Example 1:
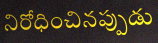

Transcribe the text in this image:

నిరోధించినప్పుడు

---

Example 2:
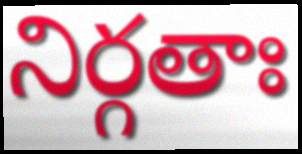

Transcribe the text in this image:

నిర్గతాః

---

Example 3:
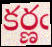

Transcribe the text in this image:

కర్ణఁ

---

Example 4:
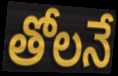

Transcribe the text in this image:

తోలనే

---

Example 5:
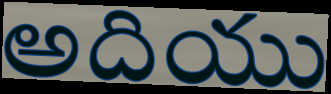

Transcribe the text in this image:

అదియు